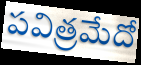
పవిత్రమేదో